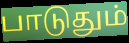
பாடுதும்